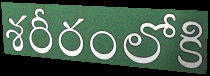
శరీరంలోకి